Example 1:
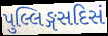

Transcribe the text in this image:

પુલ્લિઙ્ગસદિસં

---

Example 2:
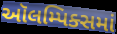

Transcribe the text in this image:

ઑલમ્પિક્સમાં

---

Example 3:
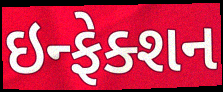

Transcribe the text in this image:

ઇન્ફેક્શન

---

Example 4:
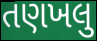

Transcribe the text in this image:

તણખલુ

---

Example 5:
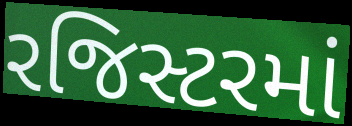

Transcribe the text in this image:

રજિસ્ટરમાં